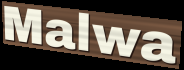
Malwa